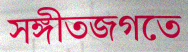
সঙ্গীতজগতে